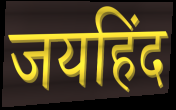
जयहिंद